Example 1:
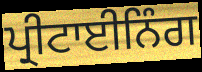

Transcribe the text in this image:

ਪ੍ਰੀਟਾਈਨਿੰਗ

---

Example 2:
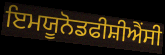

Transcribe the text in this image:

ਇਮਯੂਨੋਡਫੀਸ਼ੀਐਂਸੀ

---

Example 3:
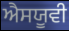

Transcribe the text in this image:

ਐਸਯੂਵੀ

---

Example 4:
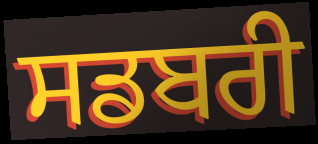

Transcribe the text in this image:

ਸਡਬਰੀ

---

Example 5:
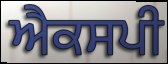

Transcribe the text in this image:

ਐਕਸਪੀ